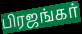
பிரஜங்கர்